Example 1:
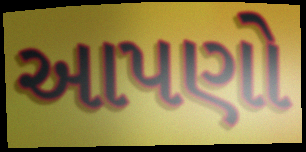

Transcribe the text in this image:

આપણો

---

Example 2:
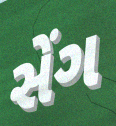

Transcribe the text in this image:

સેંગ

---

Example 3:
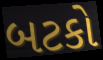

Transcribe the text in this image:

બટકો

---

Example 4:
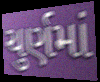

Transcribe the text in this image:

ચુર્ણમાં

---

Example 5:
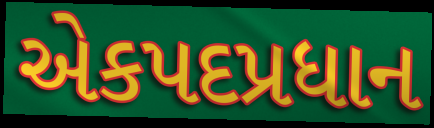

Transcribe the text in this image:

એકપદપ્રધાન